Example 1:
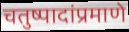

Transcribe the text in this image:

चतुष्पादांप्रमाणे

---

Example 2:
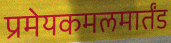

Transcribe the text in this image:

प्रमेयकमलमार्तंड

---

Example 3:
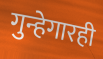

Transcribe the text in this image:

गुन्हेगारही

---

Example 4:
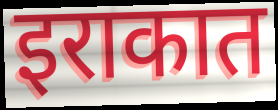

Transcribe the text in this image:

इराकात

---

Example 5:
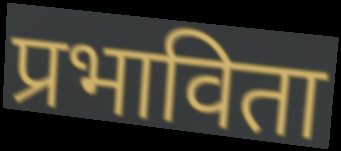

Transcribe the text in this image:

प्रभाविता